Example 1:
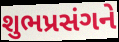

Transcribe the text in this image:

શુભપ્રસંગને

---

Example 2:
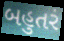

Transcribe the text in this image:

બહુતરં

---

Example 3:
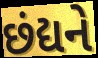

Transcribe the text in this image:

છંદ્યને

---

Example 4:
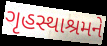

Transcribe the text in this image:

ગૃહસ્થાશ્રમને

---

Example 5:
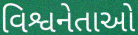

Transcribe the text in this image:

વિશ્વનેતાઓ